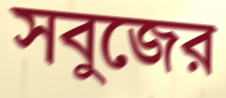
সবুজের